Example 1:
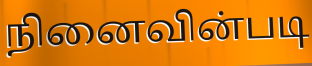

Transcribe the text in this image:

நினைவின்படி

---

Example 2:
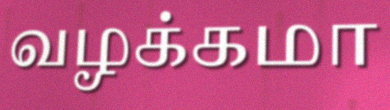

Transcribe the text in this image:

வழக்கமா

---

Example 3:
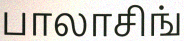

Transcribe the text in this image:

பாலாசிங்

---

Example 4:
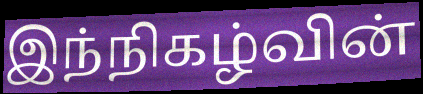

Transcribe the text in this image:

இந்நிகழ்வின்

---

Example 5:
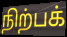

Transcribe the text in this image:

நிற்பக்